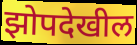
झोपदेखील